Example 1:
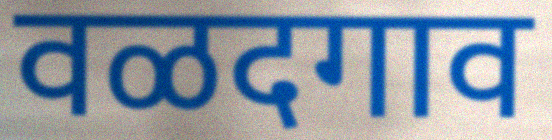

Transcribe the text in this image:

वळदगाव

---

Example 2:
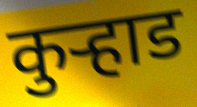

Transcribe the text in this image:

कुर्‍हाड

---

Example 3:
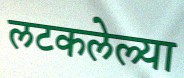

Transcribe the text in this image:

लटकलेल्या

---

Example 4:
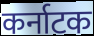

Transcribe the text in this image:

कर्नाटक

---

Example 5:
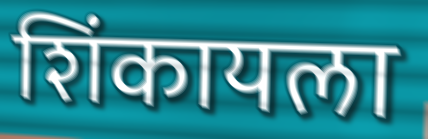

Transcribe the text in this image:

शिंकायला